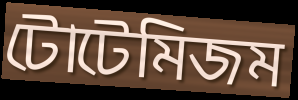
টোটেমিজম